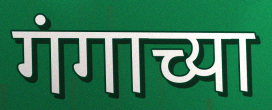
गंगाच्या